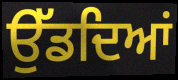
ਉੱਡਦਿਆਂ